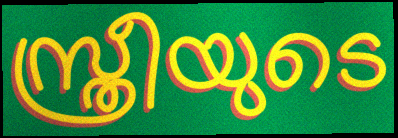
സ്ത്രീയുടെ